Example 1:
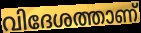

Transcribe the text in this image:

വിദേശത്താണ്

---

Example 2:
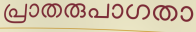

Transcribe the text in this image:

പ്രാതരുപാഗതാ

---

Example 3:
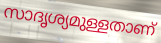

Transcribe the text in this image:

സാദൃശ്യമുള്ളതാണ്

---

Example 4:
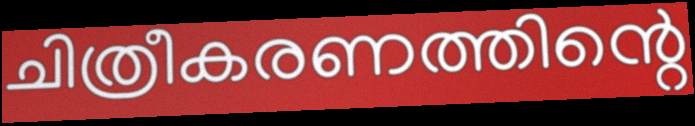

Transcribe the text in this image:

ചിത്രീകരണത്തിന്റെ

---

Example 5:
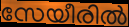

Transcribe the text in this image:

സേയീരിൽ